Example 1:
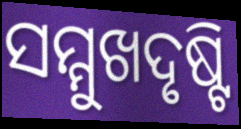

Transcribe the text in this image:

ସମ୍ମୁଖଦୃଷ୍ଟି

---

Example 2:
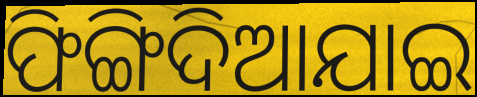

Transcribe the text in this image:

ଫିଙ୍ଗିଦିଆଯାଇ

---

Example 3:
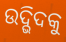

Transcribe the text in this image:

ଉଦ୍ଭିଦକୁ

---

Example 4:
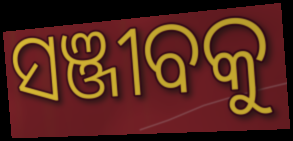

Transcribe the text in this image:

ସଞ୍ଜୀବକୁ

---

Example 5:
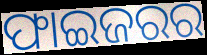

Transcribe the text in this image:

ଫାଇଜରର